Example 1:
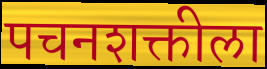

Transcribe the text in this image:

पचनशक्तीला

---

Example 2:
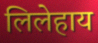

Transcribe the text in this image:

लिलेहाय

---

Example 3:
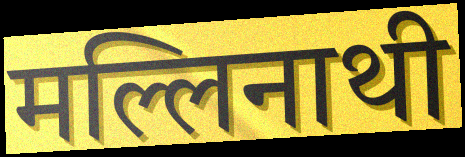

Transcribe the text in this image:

मल्लिनाथी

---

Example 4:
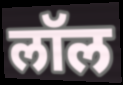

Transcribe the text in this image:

लॉल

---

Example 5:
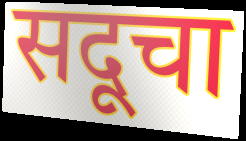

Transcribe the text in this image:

सदूचा